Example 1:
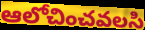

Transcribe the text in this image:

ఆలోచించవలసి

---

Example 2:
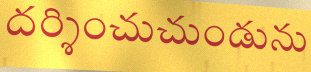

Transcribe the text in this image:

దర్శించుచుండును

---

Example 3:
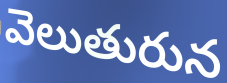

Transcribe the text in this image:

వెలుతురున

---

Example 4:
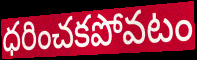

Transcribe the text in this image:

ధరించకపోవటం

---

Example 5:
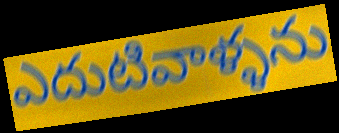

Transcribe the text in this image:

ఎదుటివాళ్ళను